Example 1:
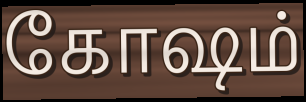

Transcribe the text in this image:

கோஷம்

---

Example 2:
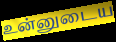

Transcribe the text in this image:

உன்னுடைய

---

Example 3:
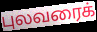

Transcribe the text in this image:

புலவரைக்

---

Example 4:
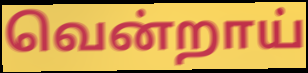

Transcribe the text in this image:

வென்றாய்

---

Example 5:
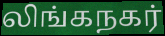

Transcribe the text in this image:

லிங்கநகர்